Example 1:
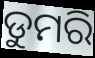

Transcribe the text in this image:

ଡୁମରି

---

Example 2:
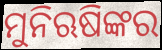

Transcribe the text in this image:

ମୁନିଋଷିଙ୍କର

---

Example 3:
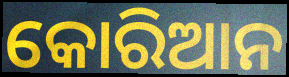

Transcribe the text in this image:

କୋରିଆନ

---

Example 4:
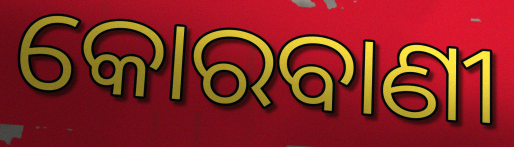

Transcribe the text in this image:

କୋରବାଣୀ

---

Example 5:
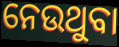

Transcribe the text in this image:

ନେଉଥୁବା